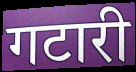
गटारी